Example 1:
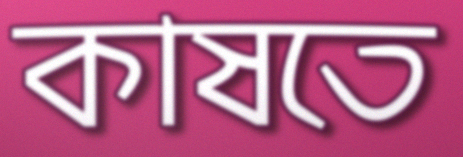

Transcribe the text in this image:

কাষতে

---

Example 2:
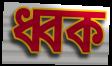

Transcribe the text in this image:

ধ্বক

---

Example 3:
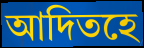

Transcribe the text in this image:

আদিতহে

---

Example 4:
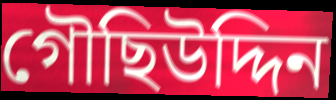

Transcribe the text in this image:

গৌছিউদ্দিন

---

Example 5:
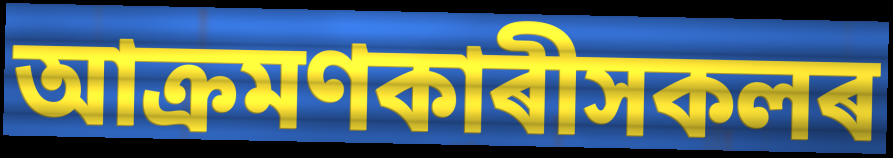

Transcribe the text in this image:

আক্ৰমণকাৰীসকলৰ